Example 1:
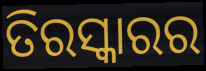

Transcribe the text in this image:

ତିରସ୍କାରର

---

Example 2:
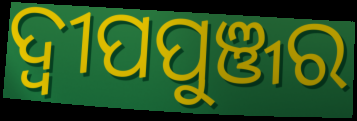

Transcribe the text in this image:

ଦ୍ଵୀପପୁଞ୍ଜର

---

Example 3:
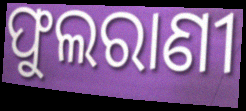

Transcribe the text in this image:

ଫୁଲରାଣୀ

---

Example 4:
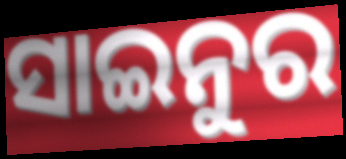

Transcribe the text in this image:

ସାଇନୁର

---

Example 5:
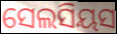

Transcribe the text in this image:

ସେଲସିୟସ